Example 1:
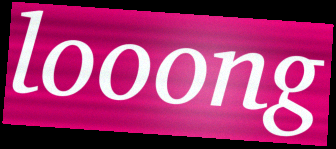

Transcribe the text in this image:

looong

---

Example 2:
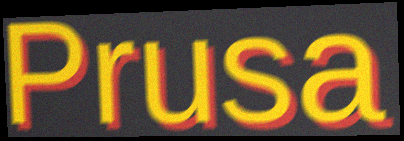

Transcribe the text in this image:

Prusa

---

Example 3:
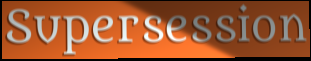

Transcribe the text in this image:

Supersession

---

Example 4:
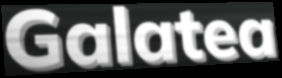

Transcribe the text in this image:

Galatea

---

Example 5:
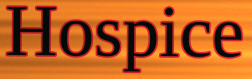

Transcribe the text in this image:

Hospice